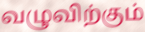
வழுவிற்கும்